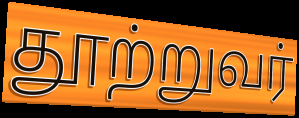
தூற்றுவர்